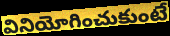
వినియోగించుకుంటే